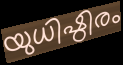
യുധിഷ്ഠിരം